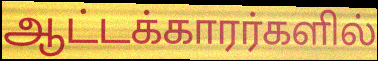
ஆட்டக்காரர்களில்